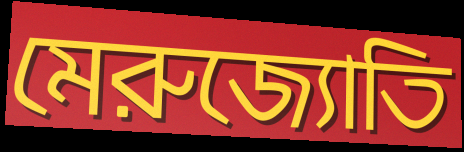
মেরুজ্যোতি